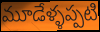
మూడేళ్ళప్పటి